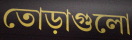
তোড়াগুলো